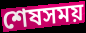
শেষসময়